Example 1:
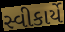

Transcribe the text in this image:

સ્વીકાર્યે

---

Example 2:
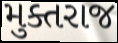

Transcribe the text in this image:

મુક્તરાજ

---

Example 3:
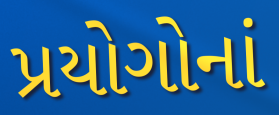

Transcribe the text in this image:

પ્રયોગોનાં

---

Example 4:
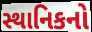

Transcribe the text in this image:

સ્થાનિકનો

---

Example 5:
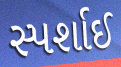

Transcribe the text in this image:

સ્પર્શાઈ